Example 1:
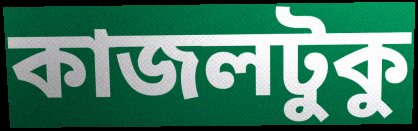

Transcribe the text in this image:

কাজলটুকু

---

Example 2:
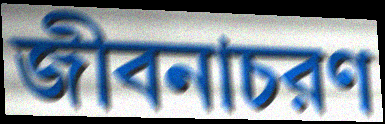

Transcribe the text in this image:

জীবনাচরণ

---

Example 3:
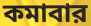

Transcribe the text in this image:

কমাবার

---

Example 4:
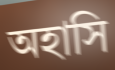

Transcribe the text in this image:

অহাসি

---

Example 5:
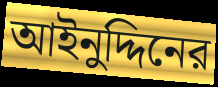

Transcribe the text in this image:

আইনুদ্দিনের